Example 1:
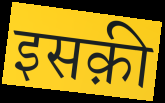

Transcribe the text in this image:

इसक़ी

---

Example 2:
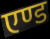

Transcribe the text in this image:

एण्ड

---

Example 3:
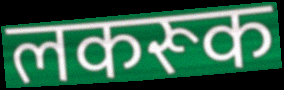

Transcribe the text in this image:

लकरूक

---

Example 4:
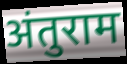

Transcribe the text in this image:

अंतुराम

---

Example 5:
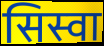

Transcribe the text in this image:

सिस्वा